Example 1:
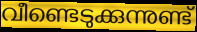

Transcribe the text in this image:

വീണ്ടെടുക്കുന്നുണ്ട്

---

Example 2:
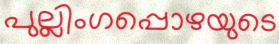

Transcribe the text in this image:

പുല്ലിംഗപ്പൊഴയുടെ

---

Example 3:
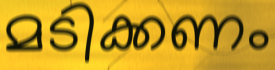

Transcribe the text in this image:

മടിക്കണം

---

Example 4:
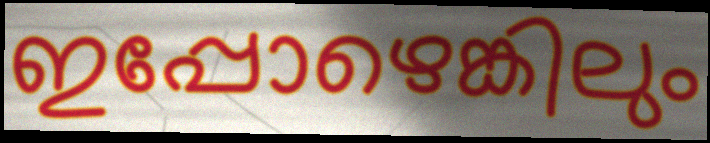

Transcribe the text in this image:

ഇപ്പോഴെങ്കിലും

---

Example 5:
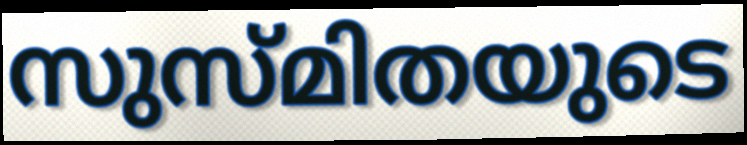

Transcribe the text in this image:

സുസ്മിതയുടെ